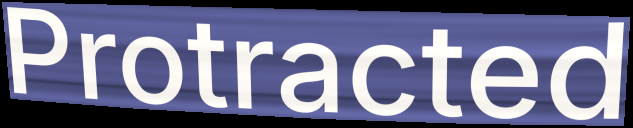
Protracted